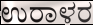
ಉರಾಳರ